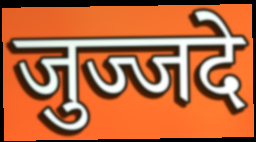
जुज्जदे